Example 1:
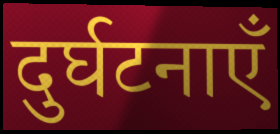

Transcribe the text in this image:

दुर्घटनाएँ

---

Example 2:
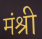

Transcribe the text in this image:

मंश्री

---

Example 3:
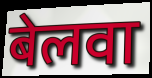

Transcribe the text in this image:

बेलवा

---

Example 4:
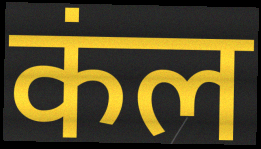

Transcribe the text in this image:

कंल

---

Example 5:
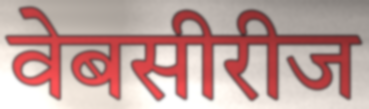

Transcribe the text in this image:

वेबसीरीज